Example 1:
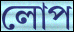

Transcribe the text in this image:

লোপ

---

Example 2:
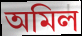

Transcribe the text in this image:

অমিল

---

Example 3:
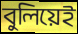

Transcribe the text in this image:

বুলিয়েই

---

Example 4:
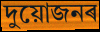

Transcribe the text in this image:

দুয়োজনৰ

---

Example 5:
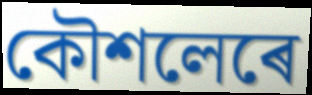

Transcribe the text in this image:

কৌশলেৰে